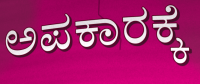
ಅಪಕಾರಕ್ಕೆ